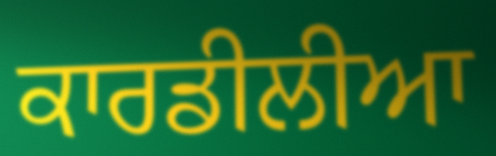
ਕਾਰਡੀਲੀਆ